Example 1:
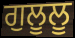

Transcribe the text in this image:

ਗੁਲੂਲੂ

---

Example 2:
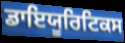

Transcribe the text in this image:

ਡਾਇਯੂਰਿਟਿਕਸ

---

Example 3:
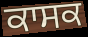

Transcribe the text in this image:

ਕਾਸਕ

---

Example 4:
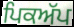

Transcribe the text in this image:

ਪਿਕਅੱਪ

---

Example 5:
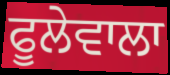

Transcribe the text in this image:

ਫੂਲੇਵਾਲਾ